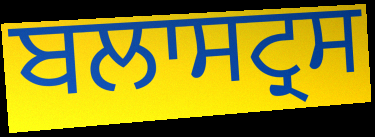
ਬਲਾਸਟ੍ਰਸ